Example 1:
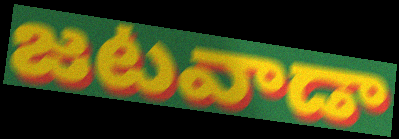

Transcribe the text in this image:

జటవాడా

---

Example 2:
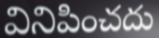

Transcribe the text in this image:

వినిపించదు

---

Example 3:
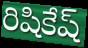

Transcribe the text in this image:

రిషికేష్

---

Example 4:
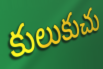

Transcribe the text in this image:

కులుకుచు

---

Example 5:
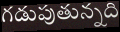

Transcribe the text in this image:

గడుపుతున్నది